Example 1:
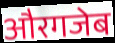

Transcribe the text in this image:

औरगजेब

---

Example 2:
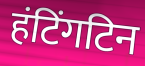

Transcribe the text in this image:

हंटिंगटिन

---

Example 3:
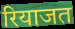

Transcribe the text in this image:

रियाजत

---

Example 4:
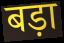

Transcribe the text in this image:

बड़ा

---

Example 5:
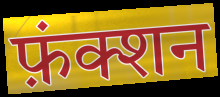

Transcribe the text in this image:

फ़ंक्शन